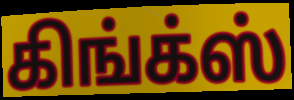
கிங்க்ஸ்